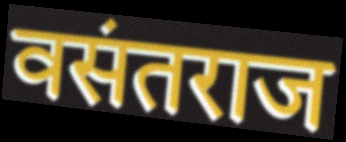
वसंतराज